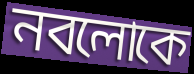
নবলোকে